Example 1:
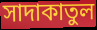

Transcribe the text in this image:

সাদাকাতুল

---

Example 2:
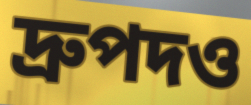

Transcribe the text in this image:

দ্রুপদও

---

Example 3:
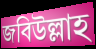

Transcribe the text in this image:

জবিউল্লাহ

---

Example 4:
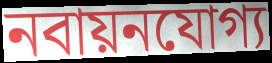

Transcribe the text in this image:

নবায়নযোগ্য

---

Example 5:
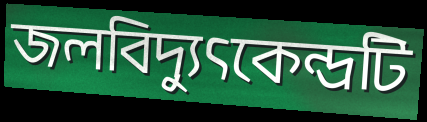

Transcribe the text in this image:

জলবিদ্যুৎকেন্দ্রটি